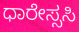
ಧಾರೇಸ್ಸಸಿ